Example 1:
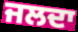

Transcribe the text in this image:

ਜਲਦਾ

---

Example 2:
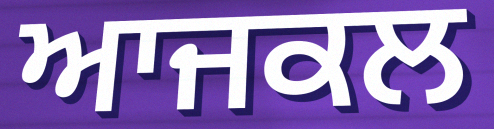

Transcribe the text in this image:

ਆਜਕਲ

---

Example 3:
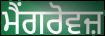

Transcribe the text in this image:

ਮੈਂਗਰੋਵਜ਼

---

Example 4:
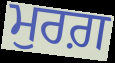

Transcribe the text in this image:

ਮੁਰਗ਼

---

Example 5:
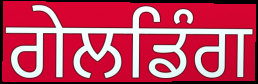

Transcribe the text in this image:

ਗੇਲਡਿੰਗ